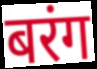
बरंग